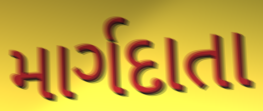
માર્ગદાતા